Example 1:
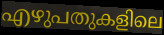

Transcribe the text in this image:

എഴുപതുകളിലെ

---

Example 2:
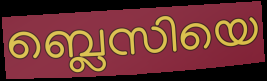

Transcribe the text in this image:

ബ്ലെസിയെ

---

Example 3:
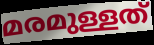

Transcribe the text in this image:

മരമുള്ളത്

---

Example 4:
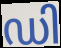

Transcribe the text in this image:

ഡി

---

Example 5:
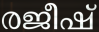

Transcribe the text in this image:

രജീഷ്